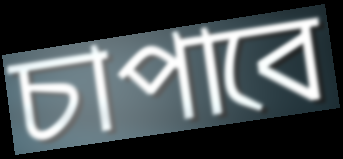
চাপাবে